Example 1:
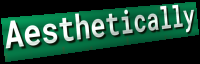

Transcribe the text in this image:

Aesthetically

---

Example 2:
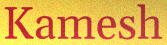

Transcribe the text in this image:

Kamesh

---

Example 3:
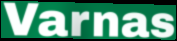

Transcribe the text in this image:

Varnas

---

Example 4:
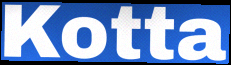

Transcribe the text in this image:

Kotta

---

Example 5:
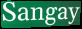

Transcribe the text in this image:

Sangay